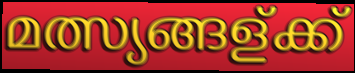
മത്സ്യങ്ങള്ക്ക്